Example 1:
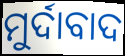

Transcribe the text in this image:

ମୁର୍ଦାବାଦ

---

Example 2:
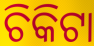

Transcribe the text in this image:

ଚିକିଟା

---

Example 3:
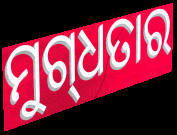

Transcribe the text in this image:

ମୁଗ୍‍ଧତାର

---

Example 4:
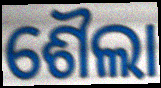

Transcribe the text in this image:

ଶୈଲା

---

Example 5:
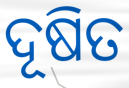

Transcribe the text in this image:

ଦୂଷିତ